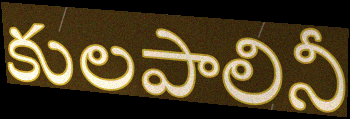
కులపాలినీ